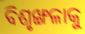
ବିଶୃଙ୍ଖଳାକୁ